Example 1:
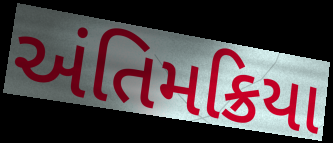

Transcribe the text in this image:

અંતિમક્રિયા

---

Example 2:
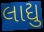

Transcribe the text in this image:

લાદ્યુ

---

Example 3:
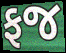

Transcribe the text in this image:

ફજ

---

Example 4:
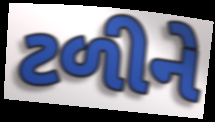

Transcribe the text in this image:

ટળીને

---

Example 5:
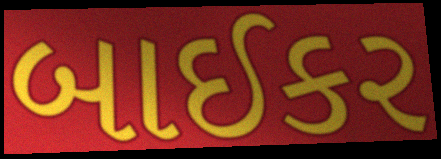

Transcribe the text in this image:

બાઈકર